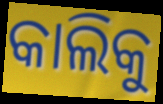
କାଲିକୁ